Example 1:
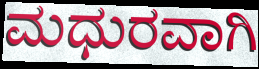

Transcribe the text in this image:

ಮಧುರವಾಗಿ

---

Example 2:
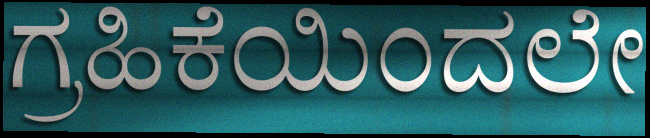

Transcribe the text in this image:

ಗ್ರಹಿಕೆಯಿಂದಲೇ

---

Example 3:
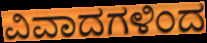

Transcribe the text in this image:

ವಿವಾದಗಳಿಂದ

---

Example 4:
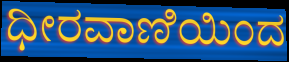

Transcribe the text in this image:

ಧೀರವಾಣಿಯಿಂದ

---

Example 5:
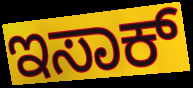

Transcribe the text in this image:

ಇಸಾಕ್